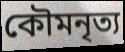
কৌমনৃত্য